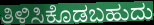
ತಿಳಿಸಿಕೊಡಬಹುದು